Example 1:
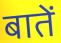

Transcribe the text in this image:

बातें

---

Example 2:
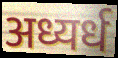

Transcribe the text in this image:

अध्यर्ध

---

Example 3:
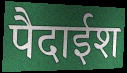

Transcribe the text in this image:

पैदाईश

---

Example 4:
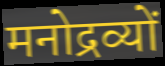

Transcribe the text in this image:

मनोद्रव्यों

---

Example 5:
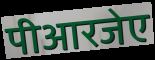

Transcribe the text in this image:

पीआरजेए